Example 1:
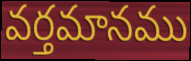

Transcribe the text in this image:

వర్తమానము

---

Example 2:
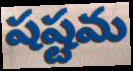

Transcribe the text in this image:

షష్టమ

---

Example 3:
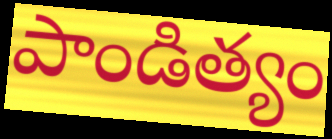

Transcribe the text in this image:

పాండిత్యం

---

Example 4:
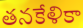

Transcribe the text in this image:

తనకేళికా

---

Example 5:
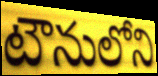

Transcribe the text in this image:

టౌనులోని